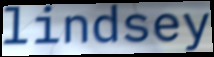
lindsey